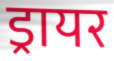
ड्रायर